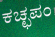
ಕಚ್ಛಪಂ